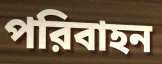
পরিবাহন